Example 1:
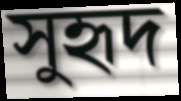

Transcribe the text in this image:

সুহৃদ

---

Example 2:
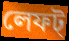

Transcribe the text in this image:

লেফট্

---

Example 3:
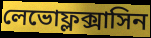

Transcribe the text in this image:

লেভোফ্লক্সাসিন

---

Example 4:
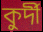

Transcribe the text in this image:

কুর্দী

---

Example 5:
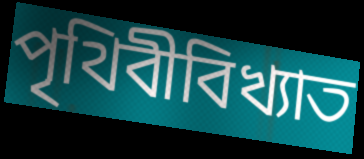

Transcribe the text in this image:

পৃথিবীবিখ্যাত